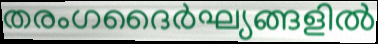
തരംഗദൈർഘ്യങ്ങളിൽ